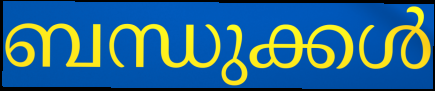
ബന്ധുക്കൾ